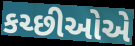
કચ્છીઓએ